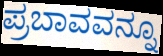
ಪ್ರಬಾವವನ್ನೂ